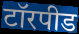
टॉरपीड